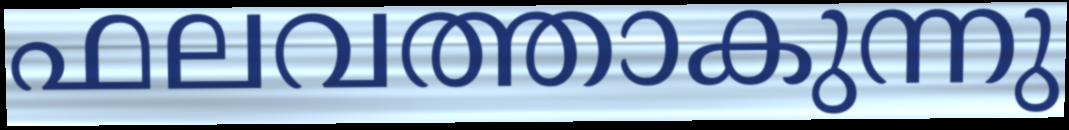
ഫലവത്താകുന്നു